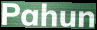
Pahun